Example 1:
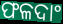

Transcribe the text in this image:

ଫଳଦାଂ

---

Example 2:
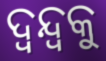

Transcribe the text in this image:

ଦ୍ଵନ୍ଦ୍ଵକୁ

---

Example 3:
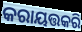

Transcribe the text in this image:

କରାୟତ୍ତକରି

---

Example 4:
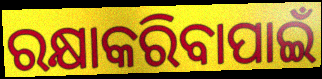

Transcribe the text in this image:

ରକ୍ଷାକରିବାପାଇଁ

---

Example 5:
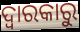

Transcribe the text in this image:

ଦ୍ଵାରକାରୁ